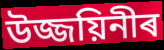
উজ্জয়িনীৰ